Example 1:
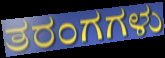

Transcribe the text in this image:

ತರಂಗಗಳು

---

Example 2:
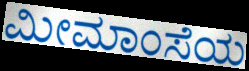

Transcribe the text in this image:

ಮೀಮಾಂಸೆಯ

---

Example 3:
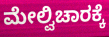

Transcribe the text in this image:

ಮೇಲ್ವಿಚಾರಕ್ಕೆ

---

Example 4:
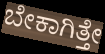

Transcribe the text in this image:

ಬೇಕಾಗಿತ್ತೇ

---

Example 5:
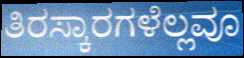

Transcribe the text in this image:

ತಿರಸ್ಕಾರಗಳೆಲ್ಲವೂ